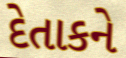
દેતાકને